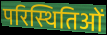
परिस्थितिओं